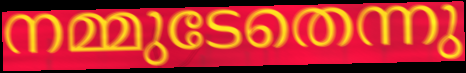
നമ്മുടേതെന്നു